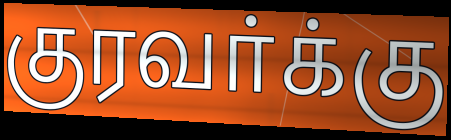
குரவர்க்கு